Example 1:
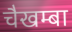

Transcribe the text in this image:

चैखम्बा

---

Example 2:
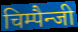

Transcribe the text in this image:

चिम्पैन्जी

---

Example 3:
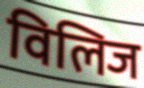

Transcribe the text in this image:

विलिज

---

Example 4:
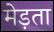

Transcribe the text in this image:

मेड़ता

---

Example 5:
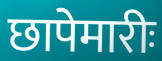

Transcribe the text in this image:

छापेमारीः